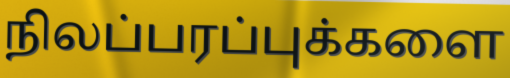
நிலப்பரப்புக்களை